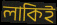
লাকিই